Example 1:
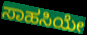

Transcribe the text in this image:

ಸಾಹಸಿಯೇ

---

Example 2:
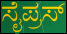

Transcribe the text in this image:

ಸೈಪ್ರಸ್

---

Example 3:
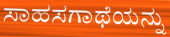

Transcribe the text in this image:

ಸಾಹಸಗಾಥೆಯನ್ನು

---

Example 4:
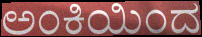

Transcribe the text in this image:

ಅಂಕಿಯಿಂದ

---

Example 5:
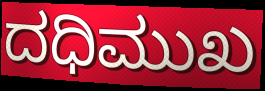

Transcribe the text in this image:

ದಧಿಮುಖ